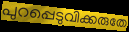
പുറപ്പെടുവിക്കരുതേ